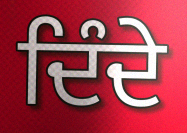
ਦਿੰਦੇ